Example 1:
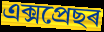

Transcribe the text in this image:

এক্সপ্ৰেছৰ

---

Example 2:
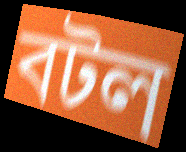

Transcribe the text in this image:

বটল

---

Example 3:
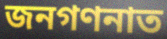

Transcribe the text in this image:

জনগণনাত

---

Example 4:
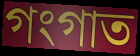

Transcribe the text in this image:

গংগাত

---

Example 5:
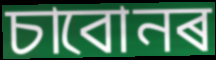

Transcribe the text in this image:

চাবোনৰ